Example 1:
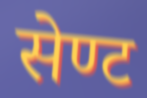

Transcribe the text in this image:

सेण्ट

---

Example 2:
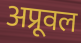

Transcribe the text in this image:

अप्रूवल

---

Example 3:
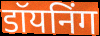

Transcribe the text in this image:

डॉयनिंग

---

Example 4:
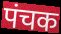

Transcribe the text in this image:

पंचक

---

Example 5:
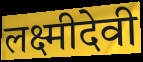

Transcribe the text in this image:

लक्ष्मीदेवी